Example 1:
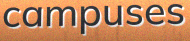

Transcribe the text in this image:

campuses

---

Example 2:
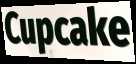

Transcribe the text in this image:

Cupcake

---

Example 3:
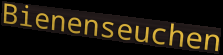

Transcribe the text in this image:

Bienenseuchen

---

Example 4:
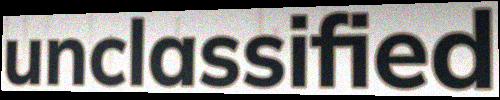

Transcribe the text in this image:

unclassified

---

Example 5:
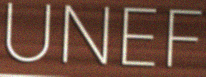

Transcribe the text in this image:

UNEF